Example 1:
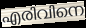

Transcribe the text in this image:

എരിവിനെ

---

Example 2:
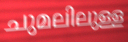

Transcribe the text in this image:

ചുമലിലുള്ള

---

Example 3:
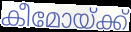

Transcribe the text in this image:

കീമോയ്ക്ക്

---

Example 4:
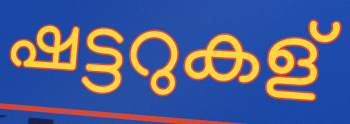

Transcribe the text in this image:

ഷട്ടറുകള്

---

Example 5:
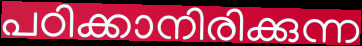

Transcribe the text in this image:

പഠിക്കാനിരിക്കുന്ന